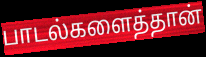
பாடல்களைத்தான்